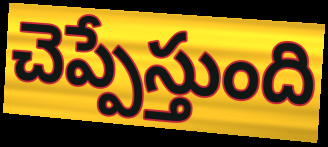
చెప్పేస్తుంది